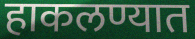
हाकलण्यात